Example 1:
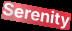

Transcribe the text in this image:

Serenity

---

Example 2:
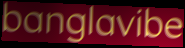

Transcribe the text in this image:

banglavibe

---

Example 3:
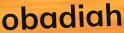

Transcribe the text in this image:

obadiah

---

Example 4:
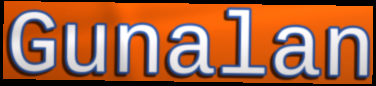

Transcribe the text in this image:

Gunalan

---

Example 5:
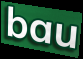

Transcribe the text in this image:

bau